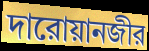
দারোয়ানজীর